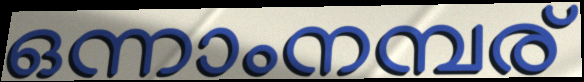
ഒന്നാംനമ്പര്